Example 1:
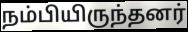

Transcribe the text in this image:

நம்பியிருந்தனர்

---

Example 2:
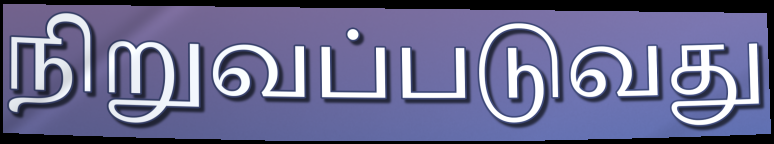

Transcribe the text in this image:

நிறுவப்படுவது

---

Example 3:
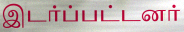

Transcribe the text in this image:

இடர்ப்பட்டனர்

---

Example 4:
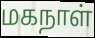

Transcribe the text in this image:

மகநாள்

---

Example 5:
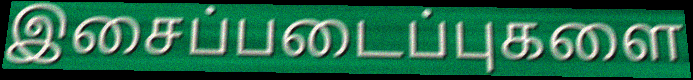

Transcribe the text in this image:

இசைப்படைப்புகளை